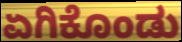
ಏಗಿಕೊಂಡು